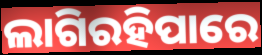
ଲାଗିରହିପାରେ